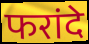
फरांदे